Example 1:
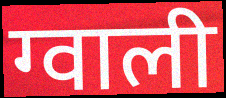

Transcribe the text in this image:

ग्वाली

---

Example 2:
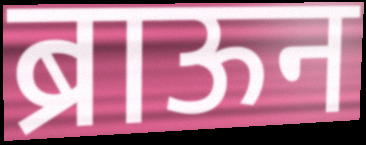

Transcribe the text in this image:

ब्राऊन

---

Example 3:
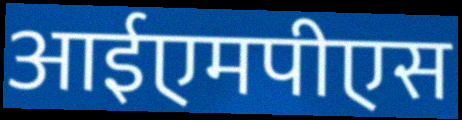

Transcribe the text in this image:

आईएमपीएस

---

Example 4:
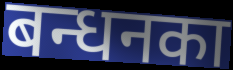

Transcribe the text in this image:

बन्धनका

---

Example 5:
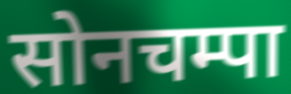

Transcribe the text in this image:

सोनचम्पा